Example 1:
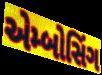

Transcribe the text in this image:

એમ્બોસિંગ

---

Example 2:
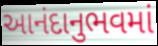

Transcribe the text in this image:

આનંદાનુભવમાં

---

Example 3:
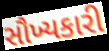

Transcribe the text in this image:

સૌખ્યકારી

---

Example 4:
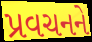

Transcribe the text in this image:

પ્રવચનને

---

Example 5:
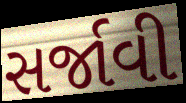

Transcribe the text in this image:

સર્જાવી